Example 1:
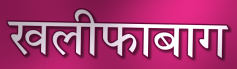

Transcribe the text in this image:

खलीफाबाग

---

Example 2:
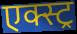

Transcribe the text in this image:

एक्स्ट्र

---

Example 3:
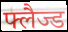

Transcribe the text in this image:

फ्लैज्ड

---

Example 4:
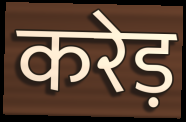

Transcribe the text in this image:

करेड़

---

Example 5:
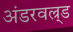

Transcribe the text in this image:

अंडरवल्र्ड